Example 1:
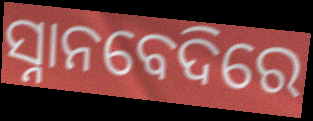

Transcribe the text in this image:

ସ୍ନାନବେଦିରେ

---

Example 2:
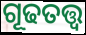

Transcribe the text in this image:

ଗୂଢତତ୍ତ୍ୱ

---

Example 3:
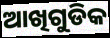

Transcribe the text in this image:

ଆଖିଗୁଡିକ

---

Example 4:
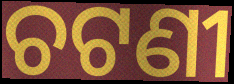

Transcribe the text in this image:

ଚଟଣୀ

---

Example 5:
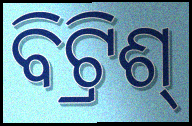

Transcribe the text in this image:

ବିଟ୍ରିଶ୍